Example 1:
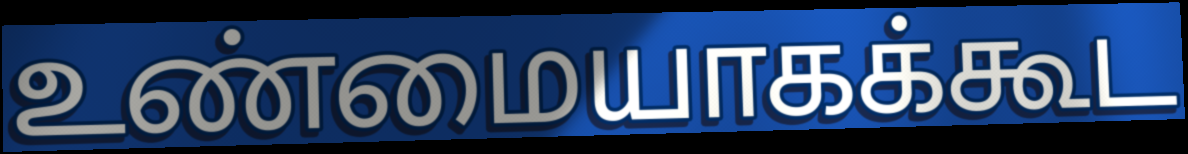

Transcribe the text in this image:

உண்மையாகக்கூட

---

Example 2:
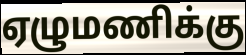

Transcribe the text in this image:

ஏழுமணிக்கு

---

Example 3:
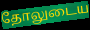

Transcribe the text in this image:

தோலுடைய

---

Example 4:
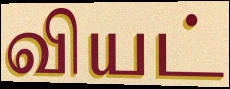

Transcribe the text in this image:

வியட்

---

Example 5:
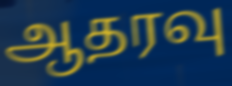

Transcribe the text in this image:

ஆதரவு